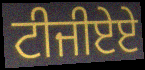
ਟੀਜੀਏਏ